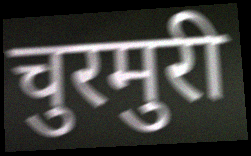
चुरमुरी